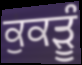
ਕੁਕੜੂੰ